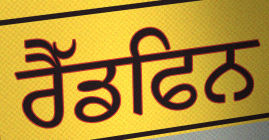
ਰੈੱਡਫਿਨ